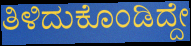
ತಿಳಿದುಕೊಂಡಿದ್ದೇ